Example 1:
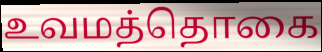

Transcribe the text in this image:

உவமத்தொகை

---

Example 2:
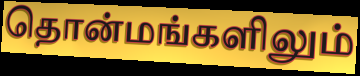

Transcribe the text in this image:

தொன்மங்களிலும்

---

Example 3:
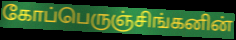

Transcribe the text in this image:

கோப்பெருஞ்சிங்கனின்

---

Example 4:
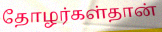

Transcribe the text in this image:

தோழர்கள்தான்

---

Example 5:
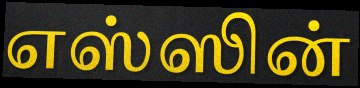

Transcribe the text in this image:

எஸ்ஸின்